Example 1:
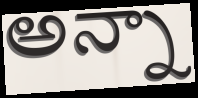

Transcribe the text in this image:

అన్నా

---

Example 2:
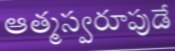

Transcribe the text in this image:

ఆత్మస్వరూపుడే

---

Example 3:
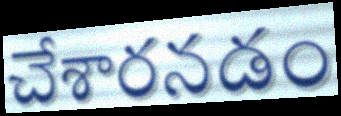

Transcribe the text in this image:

చేశారనడం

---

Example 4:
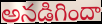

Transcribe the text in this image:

అనడిగిందా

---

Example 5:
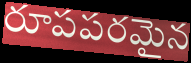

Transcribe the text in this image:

రూపపరమైన